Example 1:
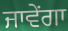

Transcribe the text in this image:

ਜਾਵੇਂਗਾ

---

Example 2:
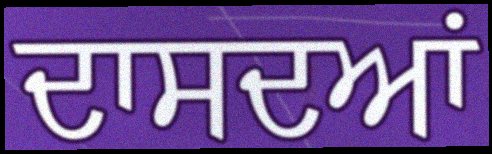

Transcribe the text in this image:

ਦਾਸਦਆਂ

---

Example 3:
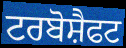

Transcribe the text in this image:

ਟਰਬੋਸ਼ੈਫਟ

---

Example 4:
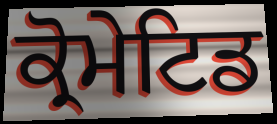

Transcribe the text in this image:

ਕ੍ਰੋਮੇਟਿਡ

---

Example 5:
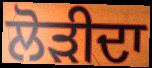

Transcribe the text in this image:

ਲੋੜੀਦਾ